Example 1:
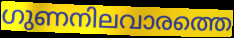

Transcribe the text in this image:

ഗുണനിലവാരത്തെ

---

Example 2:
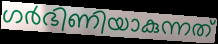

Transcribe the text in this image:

ഗർഭിണിയാകുന്നത്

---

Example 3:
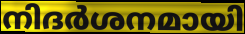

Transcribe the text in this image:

നിദർശനമായി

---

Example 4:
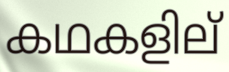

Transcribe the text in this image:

കഥകളില്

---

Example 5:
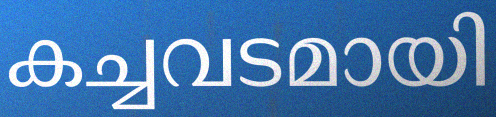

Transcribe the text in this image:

കച്ചവടമായി